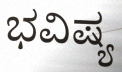
ಭವಿಷ್ಯ